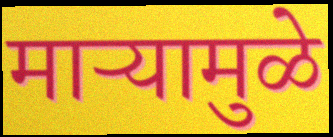
माऱ्यामुळे